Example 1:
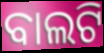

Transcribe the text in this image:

ବାଲଟି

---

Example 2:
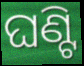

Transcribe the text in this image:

ଘଣ୍ଟି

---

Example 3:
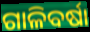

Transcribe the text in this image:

ଗାଳିବର୍ଷା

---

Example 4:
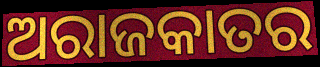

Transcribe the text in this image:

ଅରାଜକାତର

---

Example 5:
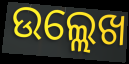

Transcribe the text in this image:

ଉଲ୍ଲେଖ